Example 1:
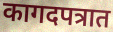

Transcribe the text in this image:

कागदपत्रात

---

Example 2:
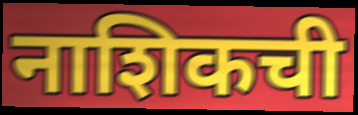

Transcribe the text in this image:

नाशिकची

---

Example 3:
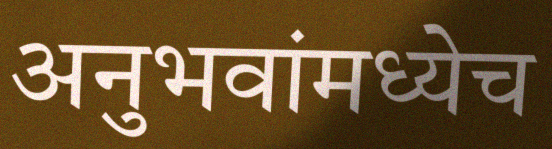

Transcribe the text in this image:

अनुभवांमध्येच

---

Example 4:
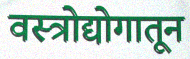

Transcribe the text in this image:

वस्त्रोद्योगातून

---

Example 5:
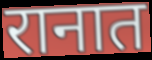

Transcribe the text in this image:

रानात